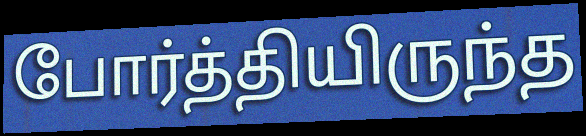
போர்த்தியிருந்த